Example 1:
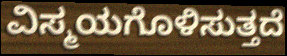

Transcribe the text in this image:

ವಿಸ್ಮಯಗೊಳಿಸುತ್ತದೆ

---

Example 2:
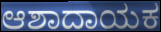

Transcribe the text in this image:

ಆಶಾದಾಯಕ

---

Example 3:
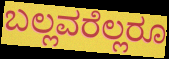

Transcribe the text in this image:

ಬಲ್ಲವರೆಲ್ಲರೂ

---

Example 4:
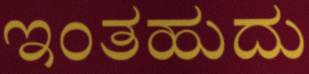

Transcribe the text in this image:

ಇಂತಹುದು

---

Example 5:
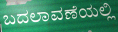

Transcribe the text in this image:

ಬದಲಾವಣೆಯಲ್ಲಿ